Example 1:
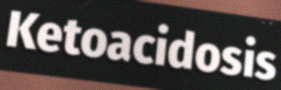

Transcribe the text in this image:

Ketoacidosis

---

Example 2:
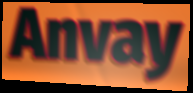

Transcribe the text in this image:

Anvay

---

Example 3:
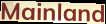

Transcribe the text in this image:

Mainland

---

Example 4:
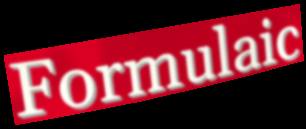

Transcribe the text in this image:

Formulaic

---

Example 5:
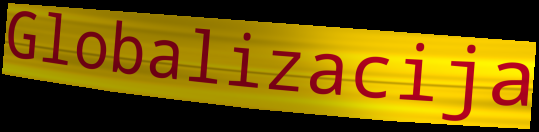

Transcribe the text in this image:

Globalizacija